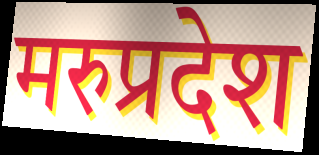
मरुप्रदेश